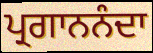
ਪ੍ਰਗਾਨਨੰਦਾ